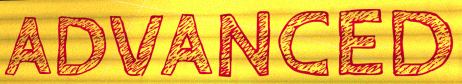
ADVANCED